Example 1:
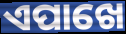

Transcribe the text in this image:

ଏପାଖେ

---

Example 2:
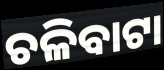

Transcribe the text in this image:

ଚଳିବାଟା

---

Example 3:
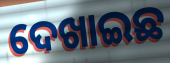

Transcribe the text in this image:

ଦେଖାଇଛ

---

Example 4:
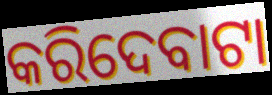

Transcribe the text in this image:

କରିଦେବାଟା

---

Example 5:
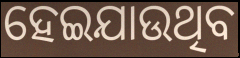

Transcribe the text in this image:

ହେଇଯାଉଥିବ